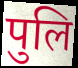
पुलि